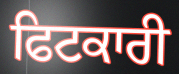
ਫਿਟਕਾਰੀ